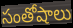
సంతోషాలు